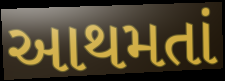
આથમતાં